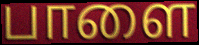
பாளை